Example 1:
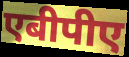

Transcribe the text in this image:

एबीपीए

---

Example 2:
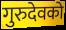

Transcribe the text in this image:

गुरुदेवको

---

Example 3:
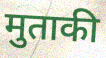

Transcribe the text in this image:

मुताकी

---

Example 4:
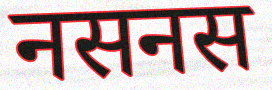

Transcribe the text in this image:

नसनस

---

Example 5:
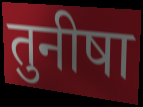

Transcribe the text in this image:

तुनीषा